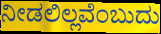
ನೀಡಲಿಲ್ಲವೆಂಬುದು